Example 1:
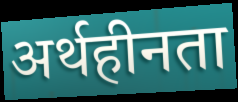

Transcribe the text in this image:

अर्थहीनता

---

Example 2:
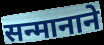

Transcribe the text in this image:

सन्मानाने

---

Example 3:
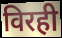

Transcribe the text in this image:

विरही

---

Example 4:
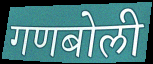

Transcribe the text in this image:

गणबोली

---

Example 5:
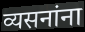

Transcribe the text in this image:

व्यसनांना